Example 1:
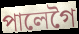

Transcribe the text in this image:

পালেগৈ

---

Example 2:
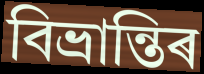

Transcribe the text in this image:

বিভ্ৰান্তিৰ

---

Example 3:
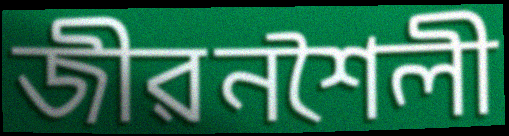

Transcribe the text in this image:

জীৱনশৈলী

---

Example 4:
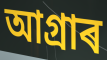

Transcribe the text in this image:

আগ্ৰাৰ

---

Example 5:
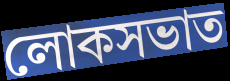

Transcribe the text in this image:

লোকসভাত